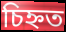
চিহ্নত